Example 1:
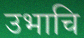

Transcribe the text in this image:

उभाचि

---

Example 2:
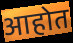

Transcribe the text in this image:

आहोत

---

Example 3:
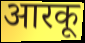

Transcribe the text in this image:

आरकू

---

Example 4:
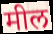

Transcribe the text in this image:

मील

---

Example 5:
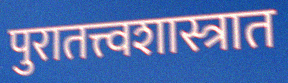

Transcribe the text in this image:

पुरातत्त्वशास्त्रात